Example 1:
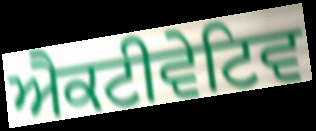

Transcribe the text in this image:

ਐਕਟੀਵੇਟਿਵ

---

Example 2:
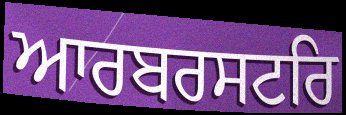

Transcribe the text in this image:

ਆਰਬਰਸਟਰਿ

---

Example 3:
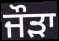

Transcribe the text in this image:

ਜੌੜਾ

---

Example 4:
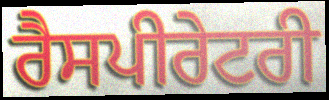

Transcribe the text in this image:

ਰੈਸਪੀਰੇਟਰੀ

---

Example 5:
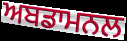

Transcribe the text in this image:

ਅਬਡਾਮਨਲ